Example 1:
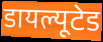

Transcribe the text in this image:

डायल्यूटेड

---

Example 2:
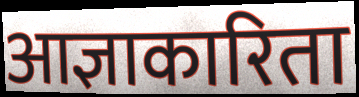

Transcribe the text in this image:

आज्ञाकारिता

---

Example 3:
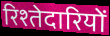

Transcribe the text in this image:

रिश्तेदारियों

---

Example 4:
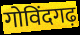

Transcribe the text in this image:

गोविंदगढ़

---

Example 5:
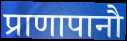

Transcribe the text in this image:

प्राणापानौ